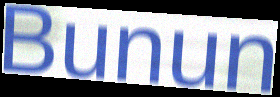
Bunun